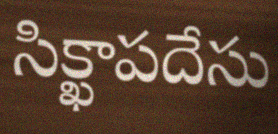
సిక్ఖాపదేసు